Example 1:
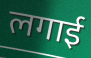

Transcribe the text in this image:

लगाई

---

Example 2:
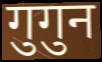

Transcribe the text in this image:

गुगुन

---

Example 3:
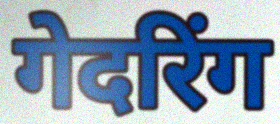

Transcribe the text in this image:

गेदरिंग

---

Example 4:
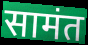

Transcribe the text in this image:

सामंत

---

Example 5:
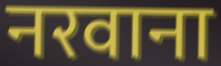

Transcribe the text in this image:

नरवाना